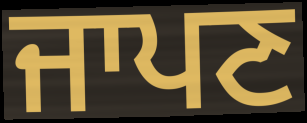
ਜਾਪਣ